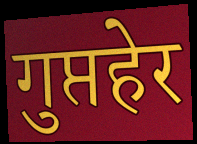
गुप्तहेर